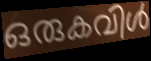
ഒരുകവിൾ